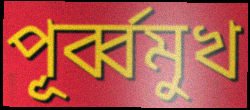
পূর্ব্বমুখ